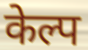
केल्प